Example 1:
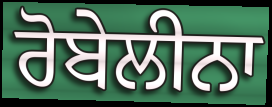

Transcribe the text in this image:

ਰੋਬੇਲੀਨਾ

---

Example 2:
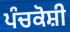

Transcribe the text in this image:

ਪੰਚਕੋਸ਼ੀ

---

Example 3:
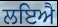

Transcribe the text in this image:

ਲਇਐ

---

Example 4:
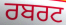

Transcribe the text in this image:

ਰਬਰਟ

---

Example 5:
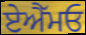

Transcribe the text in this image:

ਏਐੱਮਓ